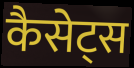
कैसेट्स